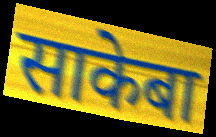
साकेबा